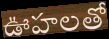
ఊహలతో